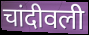
चांदीवली